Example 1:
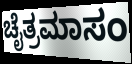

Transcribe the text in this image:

ಚೈತ್ರಮಾಸಂ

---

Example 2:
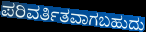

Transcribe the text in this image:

ಪರಿವರ್ತಿತವಾಗಬಹುದು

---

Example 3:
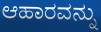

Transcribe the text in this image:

ಆಹಾರವನ್ನು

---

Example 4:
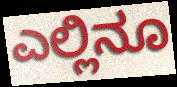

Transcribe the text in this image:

ಎಲ್ಲಿನೂ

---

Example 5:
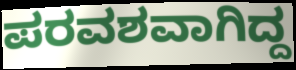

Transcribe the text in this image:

ಪರವಶವಾಗಿದ್ದ